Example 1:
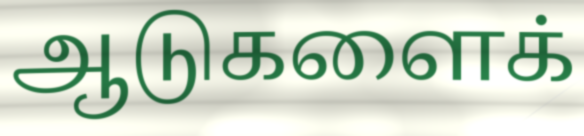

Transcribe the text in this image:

ஆடுகளைக்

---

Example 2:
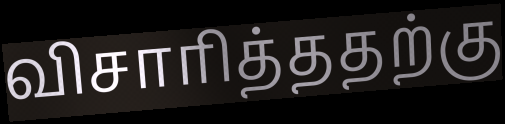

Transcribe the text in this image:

விசாரித்ததற்கு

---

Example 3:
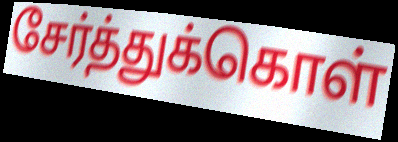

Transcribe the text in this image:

சேர்த்துக்கொள்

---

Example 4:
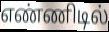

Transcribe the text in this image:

எண்ணிடில்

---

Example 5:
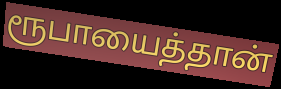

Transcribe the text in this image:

ரூபாயைத்தான்